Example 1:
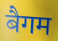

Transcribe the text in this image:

बैगम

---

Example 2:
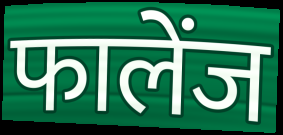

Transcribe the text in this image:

फालेंज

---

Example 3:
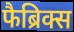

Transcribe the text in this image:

फैब्रिक्स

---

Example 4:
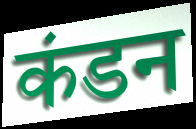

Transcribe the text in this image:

कंडन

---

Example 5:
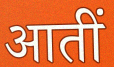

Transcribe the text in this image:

आतीं